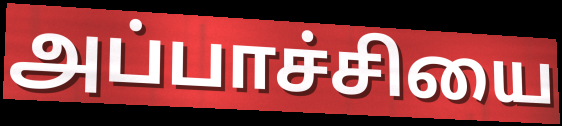
அப்பாச்சியை